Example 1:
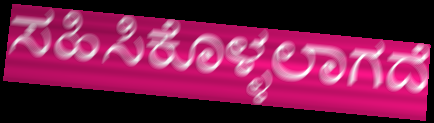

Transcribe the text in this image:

ಸಹಿಸಿಕೊಳ್ಳಲಾಗದೆ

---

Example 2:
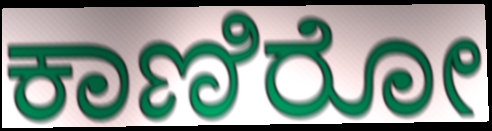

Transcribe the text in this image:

ಕಾಣಿರೋ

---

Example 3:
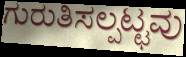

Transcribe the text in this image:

ಗುರುತಿಸಲ್ಪಟ್ಟವು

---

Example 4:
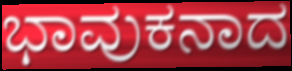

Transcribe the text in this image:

ಭಾವುಕನಾದ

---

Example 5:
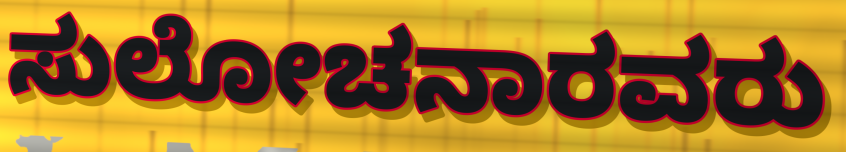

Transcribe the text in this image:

ಸುಲೋಚನಾರವರು